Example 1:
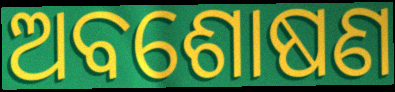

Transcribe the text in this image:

ଅବଶୋଷଣ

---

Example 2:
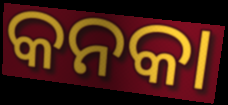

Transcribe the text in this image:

କନକା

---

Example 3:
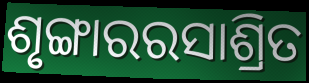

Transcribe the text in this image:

ଶୃଙ୍ଗାରରସାଶ୍ରିତ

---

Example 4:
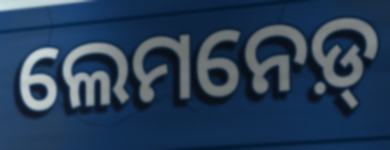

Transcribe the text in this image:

ଲେମନେଡ଼୍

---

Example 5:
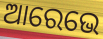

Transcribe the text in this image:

ଆରେଭେ